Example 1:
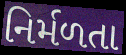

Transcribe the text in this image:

નિર્મળતા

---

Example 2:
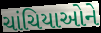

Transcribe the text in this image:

ચાંચિયાઓને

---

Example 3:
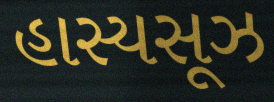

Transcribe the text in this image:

હાસ્યસૂઝ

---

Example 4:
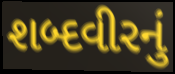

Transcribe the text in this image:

શબ્દવીરનું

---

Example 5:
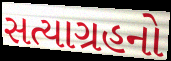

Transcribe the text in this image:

સત્યાગ્રહનો